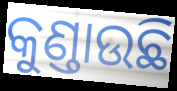
କୁଣ୍ଡାଉଛି